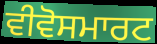
ਵੀਵੋਸਮਾਰਟ